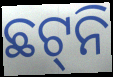
ଛଟ୍‌ନି